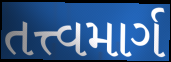
તત્ત્વમાર્ગ